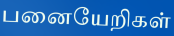
பனையேறிகள்